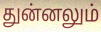
துன்னலும்